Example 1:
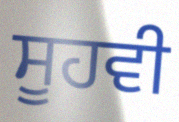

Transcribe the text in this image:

ਸੂਹਵੀ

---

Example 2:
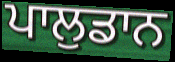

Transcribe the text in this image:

ਪਾਲੁਡਾਨ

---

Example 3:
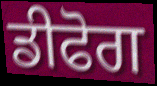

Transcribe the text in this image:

ਡੀਫੋਗ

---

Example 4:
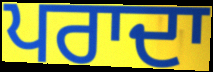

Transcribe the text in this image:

ਪਰਾਦਾ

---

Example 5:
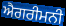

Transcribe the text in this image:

ਐਗਰੀਮਨੀ